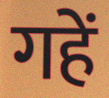
गहें